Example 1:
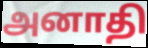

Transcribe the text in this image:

அனாதி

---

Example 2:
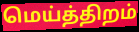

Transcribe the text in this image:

மெய்த்திறம்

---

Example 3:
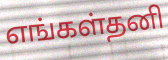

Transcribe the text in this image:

எங்கள்தனி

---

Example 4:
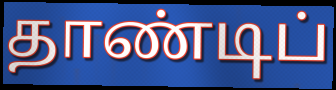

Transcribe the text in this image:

தாண்டிப்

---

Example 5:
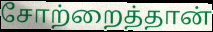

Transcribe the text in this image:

சோற்றைத்தான்